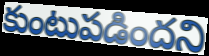
కుంటుపడిందని